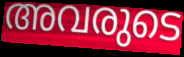
അവരുടെ